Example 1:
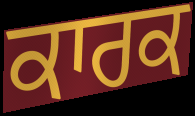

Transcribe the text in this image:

ਕਾਰਕ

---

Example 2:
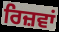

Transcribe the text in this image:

ਰਿਜ਼ਵਾਂ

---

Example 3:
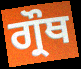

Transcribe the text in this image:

ਗ੍ਰੌਥ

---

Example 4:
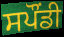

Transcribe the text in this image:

ਸਪੌਂਡੀ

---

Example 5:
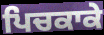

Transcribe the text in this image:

ਪਿਚਕਾਕੇ